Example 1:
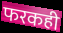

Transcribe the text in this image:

फरकही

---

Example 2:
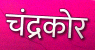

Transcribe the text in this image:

चंद्रकोर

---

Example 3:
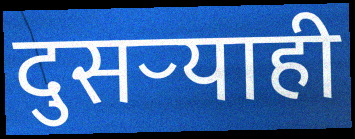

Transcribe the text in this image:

दुसऱ्याही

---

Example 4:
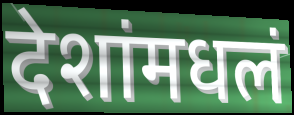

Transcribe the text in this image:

देशांमधलं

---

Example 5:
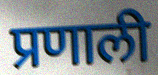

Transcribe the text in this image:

प्रणाली